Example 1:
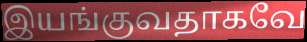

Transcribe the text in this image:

இயங்குவதாகவே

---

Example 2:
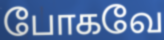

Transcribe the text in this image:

போகவே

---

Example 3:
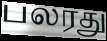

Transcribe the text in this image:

பலரது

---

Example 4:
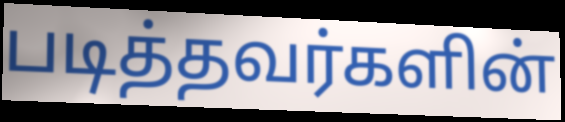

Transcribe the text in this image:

படித்தவர்களின்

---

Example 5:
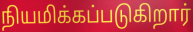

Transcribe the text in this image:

நியமிக்கப்படுகிறார்